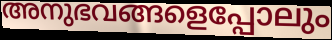
അനുഭവങ്ങളെപ്പോലും